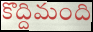
కొద్దిమంది